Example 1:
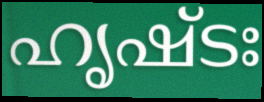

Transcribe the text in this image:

ഹൃഷ്ടഃ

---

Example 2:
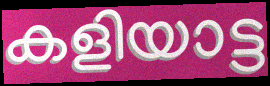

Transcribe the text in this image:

കളിയാട്ട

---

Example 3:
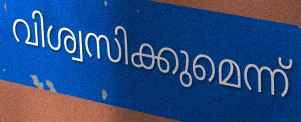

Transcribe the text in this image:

വിശ്വസിക്കുമെന്ന്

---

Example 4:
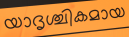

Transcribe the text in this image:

യാദൃശ്ചികമായ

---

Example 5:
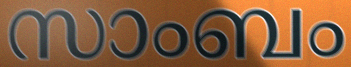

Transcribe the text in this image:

സാംബം